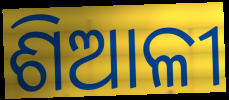
ଶିଆଳୀ